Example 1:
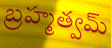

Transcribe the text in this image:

బ్రహ్మత్వమ్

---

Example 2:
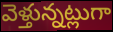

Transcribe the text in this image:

వెళ్తున్నట్లుగా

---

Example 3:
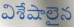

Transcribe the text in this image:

విశేషాలైన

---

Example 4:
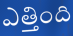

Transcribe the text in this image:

ఎత్తింది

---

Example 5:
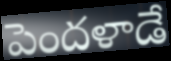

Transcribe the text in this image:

పెందళాడే